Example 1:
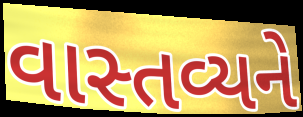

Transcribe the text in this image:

વાસ્તવ્યને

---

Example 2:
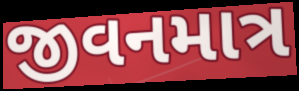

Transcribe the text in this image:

જીવનમાત્ર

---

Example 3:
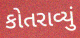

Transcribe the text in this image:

કોતરાવ્યું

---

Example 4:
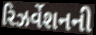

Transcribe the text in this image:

રિઝર્વેશનની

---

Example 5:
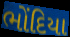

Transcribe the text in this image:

ભોંદિયા